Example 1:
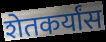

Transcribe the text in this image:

शेतकर्यांस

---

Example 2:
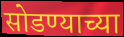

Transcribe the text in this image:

सोडण्याच्या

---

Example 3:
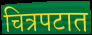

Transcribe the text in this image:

चित्रपटात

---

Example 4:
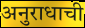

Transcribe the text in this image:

अनुराधाची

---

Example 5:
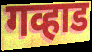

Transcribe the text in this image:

गव्हाड